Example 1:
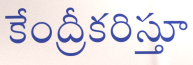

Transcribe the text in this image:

కేంద్రీకరిస్తూ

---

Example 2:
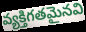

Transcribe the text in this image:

వ్యక్తిగతమైనవి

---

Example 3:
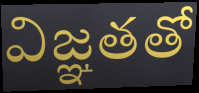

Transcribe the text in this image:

విజ్ఞతతో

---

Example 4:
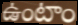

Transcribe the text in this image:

ఉంటాం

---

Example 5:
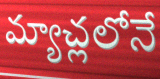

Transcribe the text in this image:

మ్యాచ్లలోనే